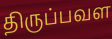
திருப்பவள